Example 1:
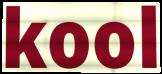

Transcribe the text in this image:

kool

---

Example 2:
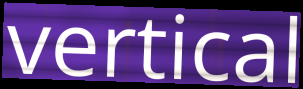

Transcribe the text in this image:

vertical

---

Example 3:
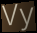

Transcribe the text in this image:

Vy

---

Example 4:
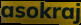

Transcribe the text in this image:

asokraj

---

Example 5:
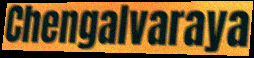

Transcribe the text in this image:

Chengalvaraya